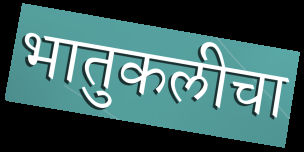
भातुकलीचा